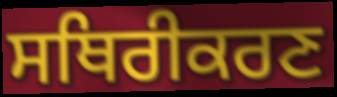
ਸਥਿਰੀਕਰਣ